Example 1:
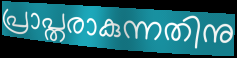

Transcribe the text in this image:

പ്രാപ്തരാകുന്നതിനു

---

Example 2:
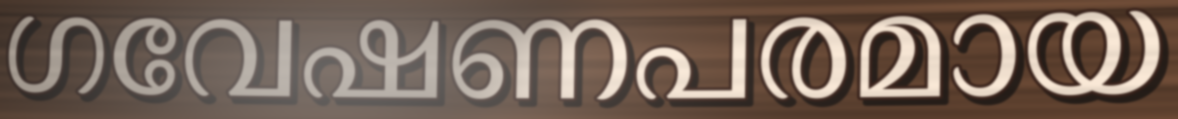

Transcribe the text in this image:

ഗവേഷണപരമായ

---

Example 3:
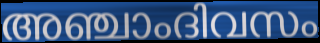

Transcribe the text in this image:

അഞ്ചാംദിവസം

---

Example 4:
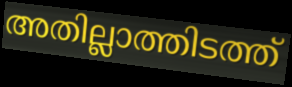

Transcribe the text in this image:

അതില്ലാത്തിടത്ത്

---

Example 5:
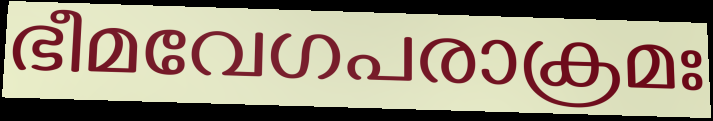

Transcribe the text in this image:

ഭീമവേഗപരാക്രമഃ